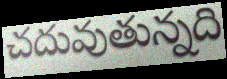
చదువుతున్నది